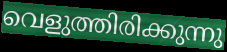
വെളുത്തിരിക്കുന്നു